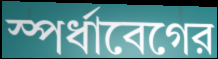
স্পর্ধাবেগের